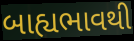
બાહ્યભાવથી